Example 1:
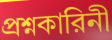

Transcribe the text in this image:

প্রশ্নকারিনী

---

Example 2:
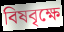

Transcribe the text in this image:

বিষবৃক্ষে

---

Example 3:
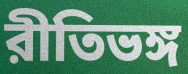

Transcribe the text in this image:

রীতিভঙ্গ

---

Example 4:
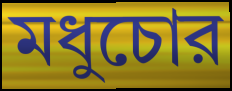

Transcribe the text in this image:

মধুচোর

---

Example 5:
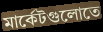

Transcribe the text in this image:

মার্কেটগুলোতে